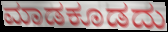
ಮಾಡಕೂಡದು